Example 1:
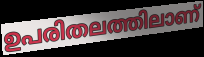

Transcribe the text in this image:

ഉപരിതലത്തിലാണ്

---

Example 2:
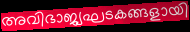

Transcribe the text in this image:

അവിഭാജ്യഘടകങ്ങളായി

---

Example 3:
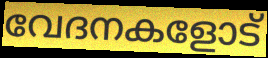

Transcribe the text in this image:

വേദനകളോട്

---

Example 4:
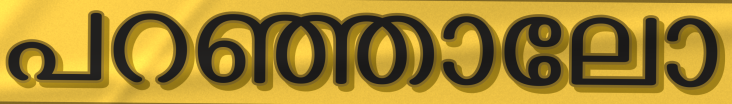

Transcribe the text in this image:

പറഞ്ഞാലോ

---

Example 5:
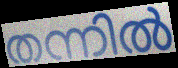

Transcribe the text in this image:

തന്നിൽ